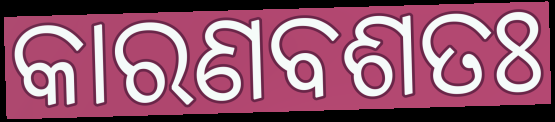
କାରଣବଶତଃ